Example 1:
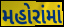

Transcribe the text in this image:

મહોરાંમાં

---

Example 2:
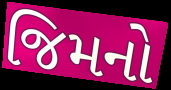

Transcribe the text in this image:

જિમનો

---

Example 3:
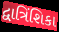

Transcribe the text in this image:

દ્વાત્રિંશિકા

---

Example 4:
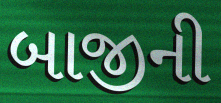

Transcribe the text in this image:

બાજીની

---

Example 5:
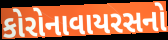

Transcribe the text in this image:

કોરોનાવાયરસનો